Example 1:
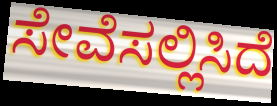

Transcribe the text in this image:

ಸೇವೆಸಲ್ಲಿಸಿದೆ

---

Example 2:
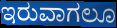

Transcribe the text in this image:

ಇರುವಾಗಲೂ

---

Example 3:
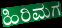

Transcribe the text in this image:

ಹಿರಿಮಗ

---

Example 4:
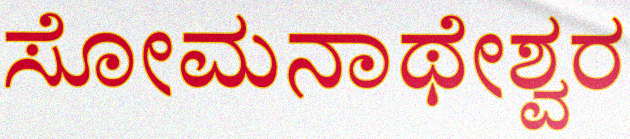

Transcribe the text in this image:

ಸೋಮನಾಥೇಶ್ವರ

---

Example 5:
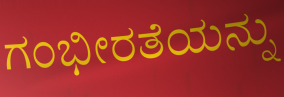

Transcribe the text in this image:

ಗಂಭೀರತೆಯನ್ನು